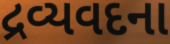
દ્રવ્યવદના